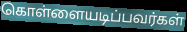
கொள்ளையடிப்பவர்கள்